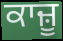
ਕਾਜ਼ੂ